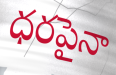
ధరపైనా